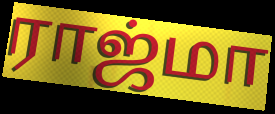
ராஜ்மா